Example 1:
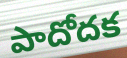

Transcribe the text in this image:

పాదోదక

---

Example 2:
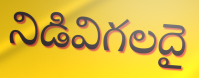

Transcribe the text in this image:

నిడివిగలదై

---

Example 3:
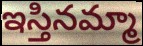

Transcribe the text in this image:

ఇస్తినమ్మా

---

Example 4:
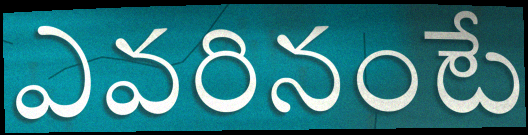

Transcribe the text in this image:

ఎవరినంటే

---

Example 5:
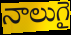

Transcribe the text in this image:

నాలుగై